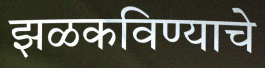
झळकविण्याचे